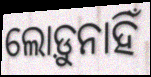
ଲୋଡ଼ୁନାହିଁ